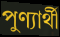
পুণ্যার্থী